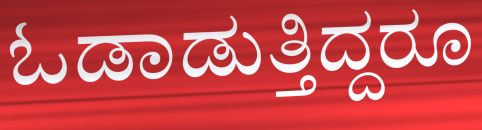
ಓಡಾಡುತ್ತಿದ್ದರೂ